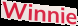
Winnie